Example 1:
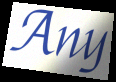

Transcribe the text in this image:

Any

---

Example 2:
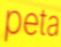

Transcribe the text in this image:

peta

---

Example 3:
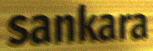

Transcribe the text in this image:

sankara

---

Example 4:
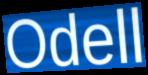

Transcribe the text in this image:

Odell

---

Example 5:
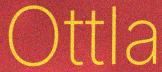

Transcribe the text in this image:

Ottla